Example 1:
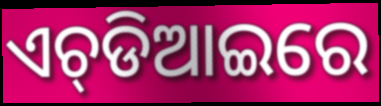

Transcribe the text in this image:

ଏଚ୍‌ଡିଆଇରେ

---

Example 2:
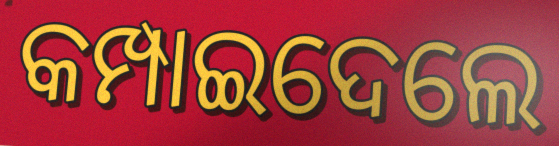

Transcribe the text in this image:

କମ୍ପାଇଦେଲେ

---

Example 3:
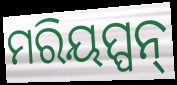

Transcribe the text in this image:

ମରିୟପ୍ପନ୍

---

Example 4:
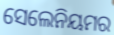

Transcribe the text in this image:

ସେଲେନିୟମର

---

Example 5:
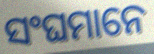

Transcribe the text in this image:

ସଂଘମାନେ